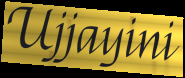
Ujjayini